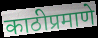
काठीप्रमाणे